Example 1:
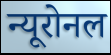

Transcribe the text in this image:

न्यूरोनल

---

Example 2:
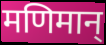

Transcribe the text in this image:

मणिमान्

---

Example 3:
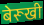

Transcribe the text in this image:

बेरूखी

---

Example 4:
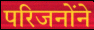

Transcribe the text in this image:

परिजनोंने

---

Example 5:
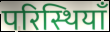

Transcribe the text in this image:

परिस्थियाँ